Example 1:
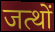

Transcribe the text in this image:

जत्थों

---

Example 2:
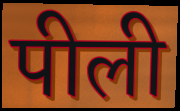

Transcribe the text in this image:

पीली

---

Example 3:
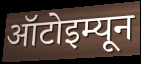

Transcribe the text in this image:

ऑटोइम्यून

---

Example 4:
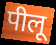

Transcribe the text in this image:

पीलू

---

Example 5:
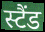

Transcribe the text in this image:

स्टैंड